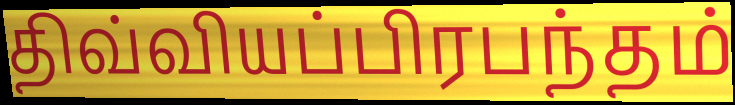
திவ்வியப்பிரபந்தம்